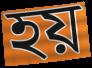
হয়